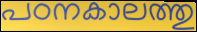
പഠനകാലത്തു